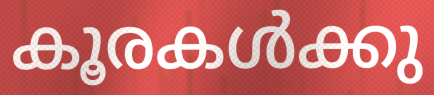
കൂരകൾക്കു